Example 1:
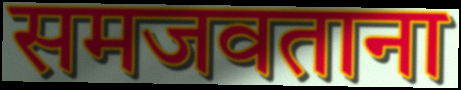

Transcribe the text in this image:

समजवताना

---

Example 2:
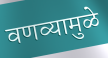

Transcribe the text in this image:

वणव्यामुळे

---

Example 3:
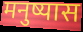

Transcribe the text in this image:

मनुष्यास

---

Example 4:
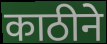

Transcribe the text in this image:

काठीने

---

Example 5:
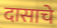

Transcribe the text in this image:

दासाचे